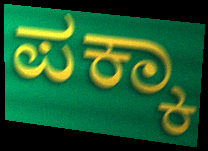
ಪಕ್ಕಾ